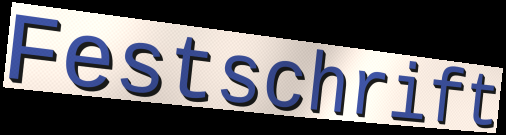
Festschrift